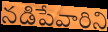
నడిపేవారిని